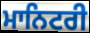
ਮਾਨਿਟਰੀ